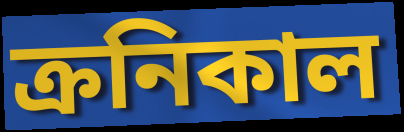
ক্রনিকাল